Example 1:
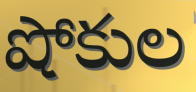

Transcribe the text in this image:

షోకుల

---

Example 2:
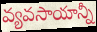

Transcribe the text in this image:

వ్యవసాయాన్నీ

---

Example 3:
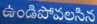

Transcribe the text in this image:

ఉండిపోవలసిన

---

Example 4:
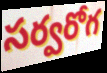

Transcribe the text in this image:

సర్వరోగ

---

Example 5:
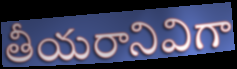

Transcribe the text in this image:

తీయరానివిగా